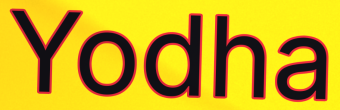
Yodha